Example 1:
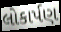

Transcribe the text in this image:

લોકાર્પણ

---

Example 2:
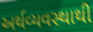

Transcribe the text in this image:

અર્થવ્યવસ્થાથી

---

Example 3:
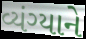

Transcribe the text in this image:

વ્યંગ્યાને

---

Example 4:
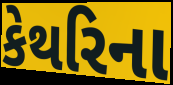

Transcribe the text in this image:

કેથરિના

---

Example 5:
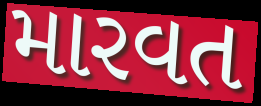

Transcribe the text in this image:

મારવત